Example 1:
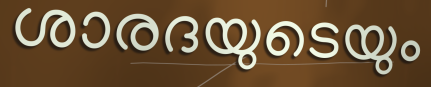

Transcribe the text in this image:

ശാരദയുടെയും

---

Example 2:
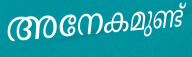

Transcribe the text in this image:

അനേകമുണ്ട്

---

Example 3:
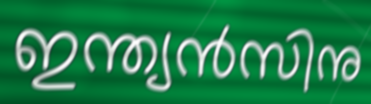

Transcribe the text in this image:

ഇന്ത്യൻസിനു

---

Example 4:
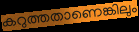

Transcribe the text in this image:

കറുത്തതാണെങ്കിലും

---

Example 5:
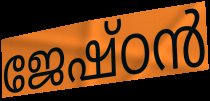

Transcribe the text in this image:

ജേഷ്ഠൻ